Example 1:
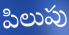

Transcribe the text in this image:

పిలుపు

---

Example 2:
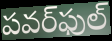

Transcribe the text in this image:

పవర్‌ఫుల్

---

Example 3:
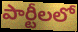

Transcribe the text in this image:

పార్టీలలో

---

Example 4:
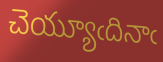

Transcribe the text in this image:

చెయ్యూఁదినాఁ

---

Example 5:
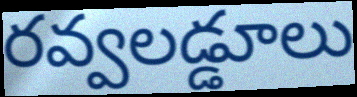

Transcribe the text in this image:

రవ్వలడ్డూలు